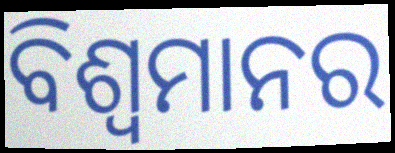
ବିଶ୍ୱମାନର